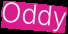
Oddy